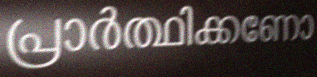
പ്രാർത്ഥിക്കണോ